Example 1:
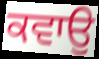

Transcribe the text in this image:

ਕਵਾਉ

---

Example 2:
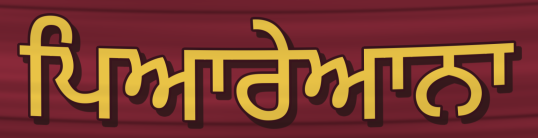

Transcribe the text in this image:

ਪਿਆਰੇਆਨਾ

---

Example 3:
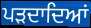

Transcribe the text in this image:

ਪੜਦਾਦਿਆਂ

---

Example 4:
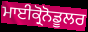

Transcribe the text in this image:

ਮਾਈਕ੍ਰੋਨੋਡੂਲਰ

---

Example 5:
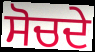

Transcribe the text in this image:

ਸੋਚਦੇ